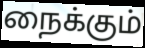
நைக்கும்